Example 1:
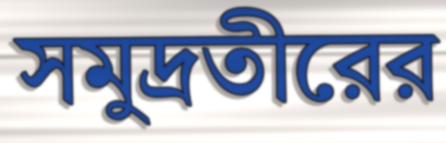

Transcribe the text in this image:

সমুদ্রতীরের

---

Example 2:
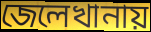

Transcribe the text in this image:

জেলেখানায়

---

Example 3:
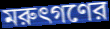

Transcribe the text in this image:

মরুৎগণের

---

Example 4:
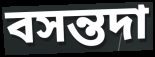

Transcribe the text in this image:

বসন্তদা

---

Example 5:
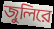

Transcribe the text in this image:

জুলিরে